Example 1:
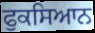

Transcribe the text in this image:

ਫੁਕਸਿਆਨ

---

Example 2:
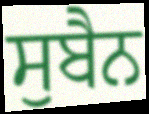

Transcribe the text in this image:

ਸੁਬੈਨ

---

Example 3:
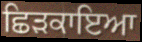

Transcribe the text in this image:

ਛਿੜਕਾਇਆ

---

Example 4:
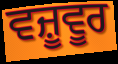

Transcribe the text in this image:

ਵਜ਼ੂਵੂਰ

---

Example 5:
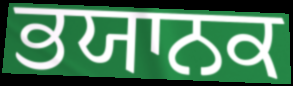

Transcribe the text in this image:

ਭਯਾਨਕ